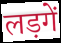
लड़गें